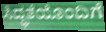
ಸಿದ್ಧತೆಯೊಂದಿಗೆ